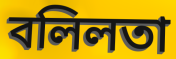
বলিলতা